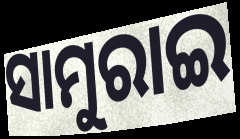
ସାମୁରାଇ